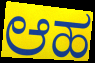
ಆಹ